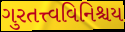
ગુરતત્ત્વવિનિશ્ચય